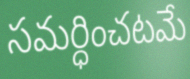
సమర్ధించటమే